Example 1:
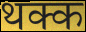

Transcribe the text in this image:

थक्क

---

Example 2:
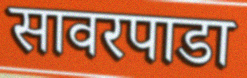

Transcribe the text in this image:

सावरपाडा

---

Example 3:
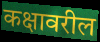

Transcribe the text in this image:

कक्षावरील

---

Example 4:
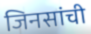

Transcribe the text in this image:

जिनसांची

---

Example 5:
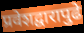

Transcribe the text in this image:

प्रवेशद्वारापुढे